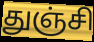
துஞ்சி